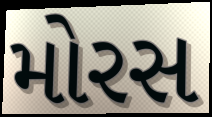
મોરસ